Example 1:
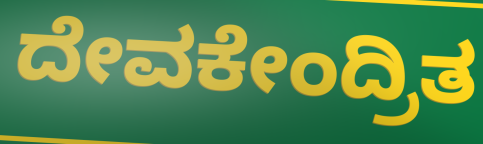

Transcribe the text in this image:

ದೇವಕೇಂದ್ರಿತ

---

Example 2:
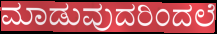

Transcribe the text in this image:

ಮಾಡುವುದರಿಂದಲೆ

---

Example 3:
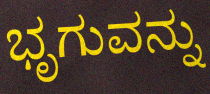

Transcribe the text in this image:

ಭೃಗುವನ್ನು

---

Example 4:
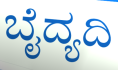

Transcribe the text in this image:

ಬೈದ್ಯದಿ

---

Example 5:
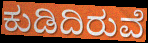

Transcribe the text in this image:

ಕುಡಿದಿರುವೆ